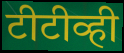
टीटीव्ही